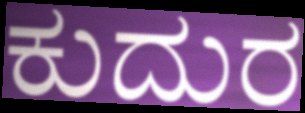
ಕುದುರ